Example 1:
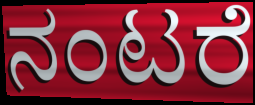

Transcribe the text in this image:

ನಂಟರೆ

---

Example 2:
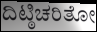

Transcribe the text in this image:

ದಿಟ್ಠಿಚರಿತೋ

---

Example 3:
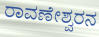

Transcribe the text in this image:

ರಾವಣೇಶ್ವರನ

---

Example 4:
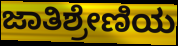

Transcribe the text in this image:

ಜಾತಿಶ್ರೇಣಿಯ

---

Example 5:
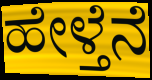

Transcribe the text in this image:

ಹೇಳ್ತೆನೆ